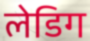
लेडिग